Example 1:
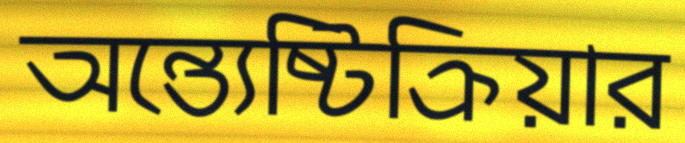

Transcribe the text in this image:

অন্ত্যেষ্টিক্রিয়ার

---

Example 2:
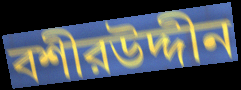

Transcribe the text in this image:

বশীরউদ্দীন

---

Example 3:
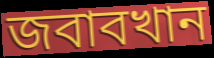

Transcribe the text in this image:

জবাবখান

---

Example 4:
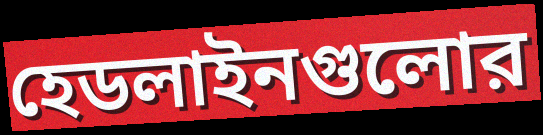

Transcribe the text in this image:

হেডলাইনগুলোর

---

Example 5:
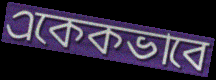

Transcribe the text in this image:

একেকভাবে